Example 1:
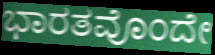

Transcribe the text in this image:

ಭಾರತವೊಂದೇ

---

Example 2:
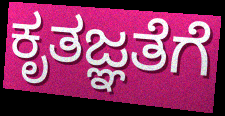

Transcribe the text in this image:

ಕೃತಜ್ಞತೆಗೆ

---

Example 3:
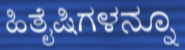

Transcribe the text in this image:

ಹಿತೈಷಿಗಳನ್ನೂ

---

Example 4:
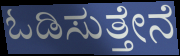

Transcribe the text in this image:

ಓಡಿಸುತ್ತೇನೆ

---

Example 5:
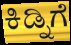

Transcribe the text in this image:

ಕಿಡ್ನಿಗೆ